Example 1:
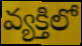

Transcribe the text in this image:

వ్యక్తిలో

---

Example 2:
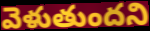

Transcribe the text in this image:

వెళుతుందని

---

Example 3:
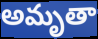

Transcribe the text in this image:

అమృతా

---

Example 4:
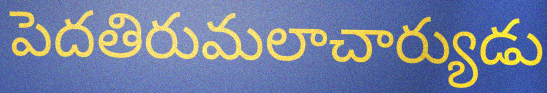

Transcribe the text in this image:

పెదతిరుమలాచార్యుడు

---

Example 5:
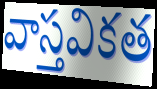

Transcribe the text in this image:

వాస్తవికత